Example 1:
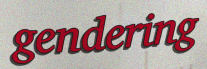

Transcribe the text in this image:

gendering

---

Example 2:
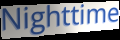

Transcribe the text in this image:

Nighttime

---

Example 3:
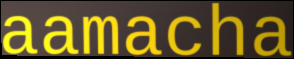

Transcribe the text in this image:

aamacha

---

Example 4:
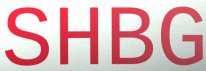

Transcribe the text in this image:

SHBG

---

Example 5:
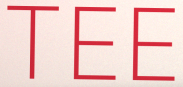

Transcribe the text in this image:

TEE